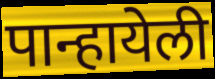
पान्हायेली